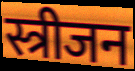
स्त्रीजन